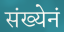
संख्येनं